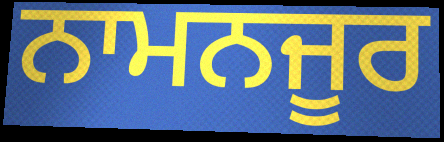
ਨਾਮਨਜੂਰ